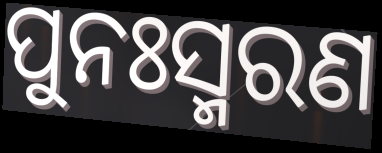
ପୁନଃସ୍ମରଣ